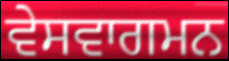
ਵੇਸਵਾਗਮਨ